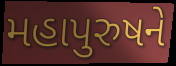
મહાપુરુષને